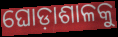
ଘୋଡ଼ାଶାଳକୁ